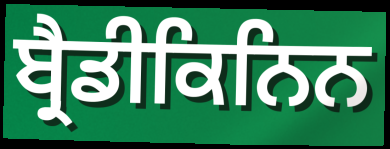
ਬ੍ਰੈਡੀਕਿਨਿਨ